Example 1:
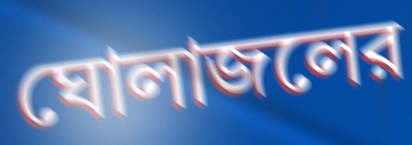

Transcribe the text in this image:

ঘোলাজলের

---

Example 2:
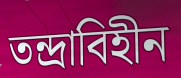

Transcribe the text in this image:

তন্দ্রাবিহীন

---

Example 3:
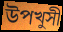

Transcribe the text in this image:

উপখুসী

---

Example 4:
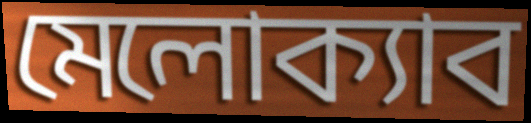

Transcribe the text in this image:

মেলোক্যাব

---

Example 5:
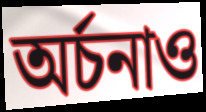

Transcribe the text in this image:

অর্চনাও